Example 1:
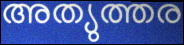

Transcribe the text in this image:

അത്യുത്തര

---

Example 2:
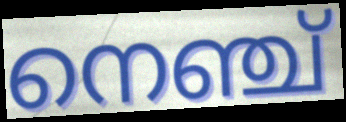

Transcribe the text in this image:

നെഞ്ച്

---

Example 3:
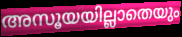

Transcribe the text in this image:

അസൂയയില്ലാതെയും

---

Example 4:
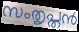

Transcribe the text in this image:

സംതൃപ്തൻ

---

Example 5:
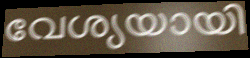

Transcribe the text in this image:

വേശ്യയായി